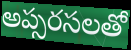
అప్సరసలతో